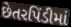
છેતરપિંડીમાં